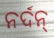
ନର୍ଦନ୍